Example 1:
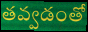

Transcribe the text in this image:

తవ్వడంతో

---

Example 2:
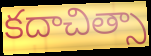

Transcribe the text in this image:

కదాచిత్సా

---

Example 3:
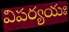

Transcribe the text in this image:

విపర్యయః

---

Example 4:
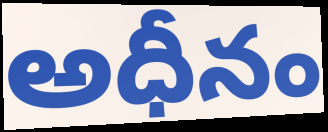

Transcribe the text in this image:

అధీనం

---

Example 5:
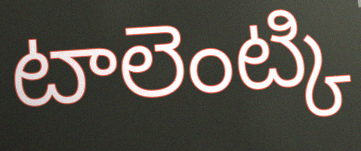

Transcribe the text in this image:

టాలెంట్కి